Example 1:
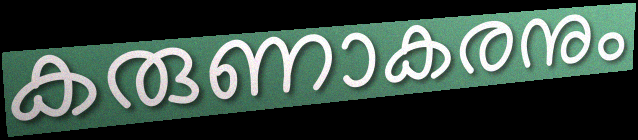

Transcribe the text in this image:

കരുണാകരനും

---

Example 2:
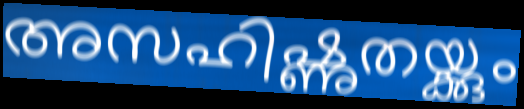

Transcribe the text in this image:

അസഹിഷ്ണുതയ്ക്കും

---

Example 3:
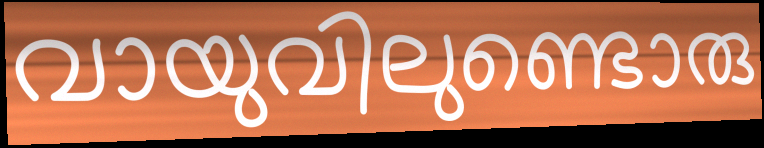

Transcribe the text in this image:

വായുവിലുണ്ടൊരു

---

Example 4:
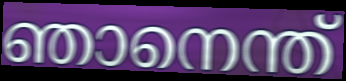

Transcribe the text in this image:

ഞാനെന്ത്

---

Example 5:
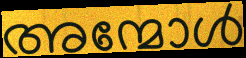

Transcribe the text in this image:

അന്മോൾ